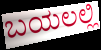
ಬಯಲಲ್ಲಿ